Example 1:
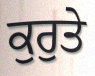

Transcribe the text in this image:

ਕੁਰੁਤੇ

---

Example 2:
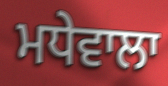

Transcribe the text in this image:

ਮਧੇਵਾਲਾ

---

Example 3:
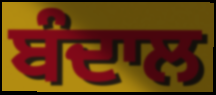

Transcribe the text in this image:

ਬੰਦਾਲ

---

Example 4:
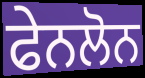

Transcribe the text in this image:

ਫੇਨਲੋਨ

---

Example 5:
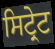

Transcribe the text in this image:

ਸਿਟ੍ਰੇਟ